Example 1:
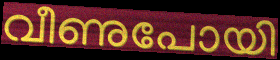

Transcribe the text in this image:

വീണുപോയി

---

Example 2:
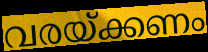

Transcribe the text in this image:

വരയ്ക്കണം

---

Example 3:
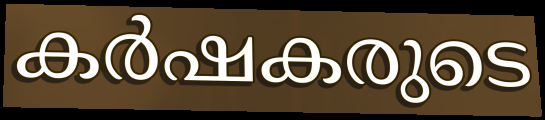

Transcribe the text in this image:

കർഷകരുടെ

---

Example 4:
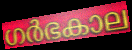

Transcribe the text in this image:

ഗർഭകാല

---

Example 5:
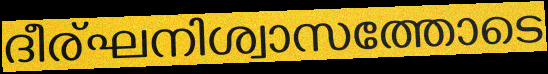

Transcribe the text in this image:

ദീര്ഘനിശ്വാസത്തോടെ